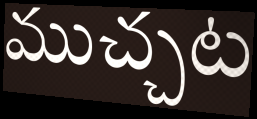
ముచ్చట